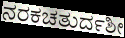
ನರಕಚತುರ್ದಶೀ